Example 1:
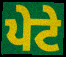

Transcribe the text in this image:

ਪੇਟੇ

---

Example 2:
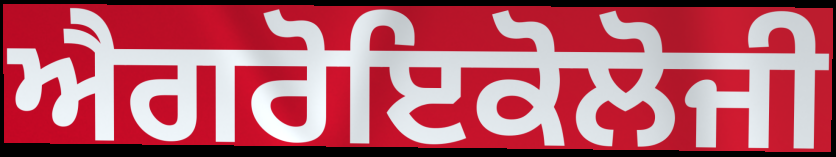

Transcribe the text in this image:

ਐਗਰੋਇਕੋਲੋਜੀ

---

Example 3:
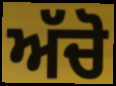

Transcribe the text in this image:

ਅੱਚੋ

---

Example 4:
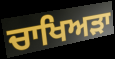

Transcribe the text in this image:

ਚਾਖਿਅੜਾ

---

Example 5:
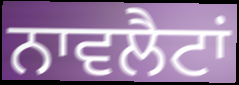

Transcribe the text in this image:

ਨਾਵਲੈਟਾਂ